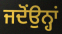
ਜਦੋਂਉਨ੍ਹਾਂ